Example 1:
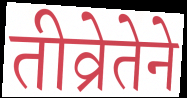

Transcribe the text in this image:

तीव्रेतेने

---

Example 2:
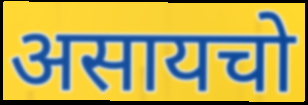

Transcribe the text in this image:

असायचो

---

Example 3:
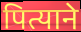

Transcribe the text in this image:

पित्याने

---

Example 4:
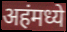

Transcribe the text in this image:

अहंमध्ये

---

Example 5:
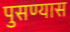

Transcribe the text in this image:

पुसण्यास